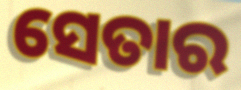
ସେତାର